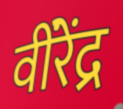
वींरेंद्र